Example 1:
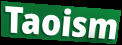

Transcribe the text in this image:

Taoism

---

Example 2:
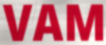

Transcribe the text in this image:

VAM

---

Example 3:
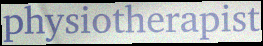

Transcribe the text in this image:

physiotherapist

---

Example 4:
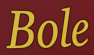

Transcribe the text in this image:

Bole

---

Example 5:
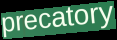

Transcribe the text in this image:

precatory